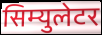
सिम्युलेटर